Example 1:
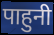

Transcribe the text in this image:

पाहुनी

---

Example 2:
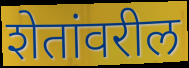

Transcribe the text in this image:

शेतांवरील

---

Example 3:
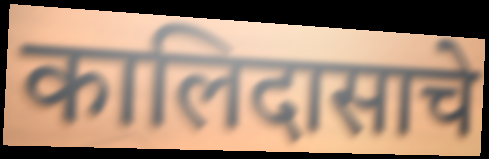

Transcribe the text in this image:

कालिदासाचे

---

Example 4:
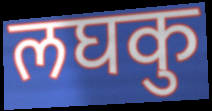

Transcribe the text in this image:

लघकु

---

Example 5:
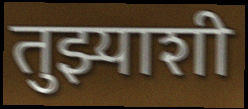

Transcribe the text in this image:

तुझ्याशी